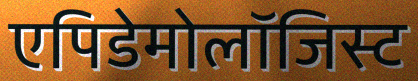
एपिडेमोलॉजिस्ट